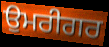
ਉਮਰੀਗਰ